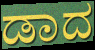
ಡಾದ